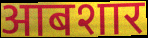
आबशार